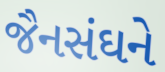
જૈનસંઘને